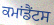
ਕਮਾਂਡੈਂਟਸ